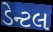
ડેન્ટલ